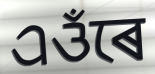
এওঁৰে